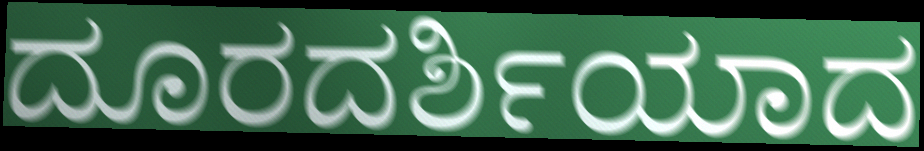
ದೂರದರ್ಶಿಯಾದ